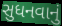
સુધનવાનું